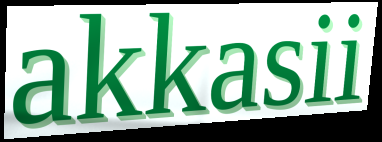
akkasii